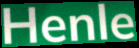
Henle